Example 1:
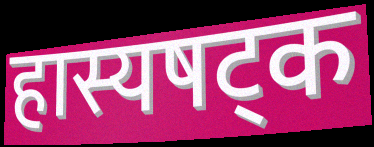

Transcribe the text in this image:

हास्यषट्क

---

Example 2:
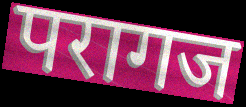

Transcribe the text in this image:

परागज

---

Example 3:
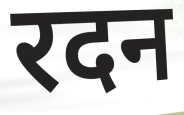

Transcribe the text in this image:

रदन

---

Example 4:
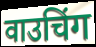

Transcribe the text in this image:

वाउचिंग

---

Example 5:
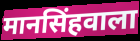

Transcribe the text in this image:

मानसिंहवाला